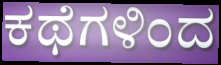
ಕಥೆಗಳಿಂದ